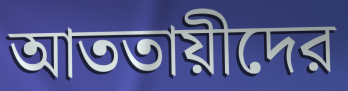
আততায়ীদের